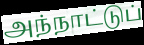
அந்நாட்டுப்